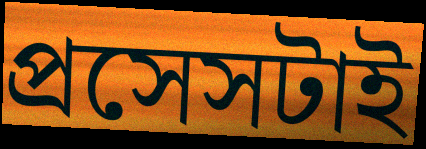
প্রসেসটাই